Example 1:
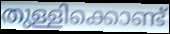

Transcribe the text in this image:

തുള്ളിക്കൊണ്ട്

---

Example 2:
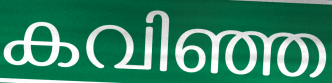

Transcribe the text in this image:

കവിഞ്ഞ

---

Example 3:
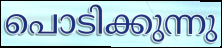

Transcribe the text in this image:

പൊടിക്കുന്നു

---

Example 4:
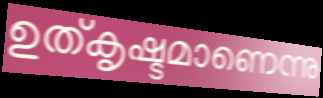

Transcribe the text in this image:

ഉത്കൃഷ്ടമാണെന്നു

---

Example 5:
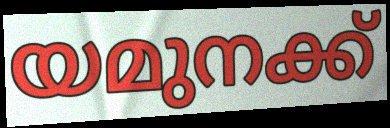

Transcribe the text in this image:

യമുനക്ക്